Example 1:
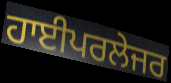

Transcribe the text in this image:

ਹਾਈਪਰਲੇਜਰ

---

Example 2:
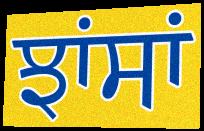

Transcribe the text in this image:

ਝਾਂਸਾਂ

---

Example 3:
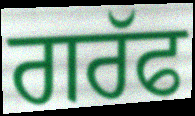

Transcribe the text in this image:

ਗਰੱਫ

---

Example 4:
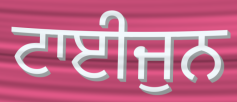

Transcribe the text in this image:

ਟਾਈਜੁਨ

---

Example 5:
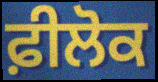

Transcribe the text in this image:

ਫ਼ੀਲੋਕ